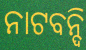
ନାଟବନ୍ଦି